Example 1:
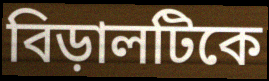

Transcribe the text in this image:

বিড়ালটিকে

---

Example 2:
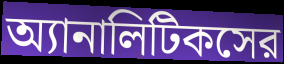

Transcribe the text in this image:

অ্যানালিটিকসের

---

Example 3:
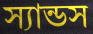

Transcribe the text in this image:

স্যান্ডস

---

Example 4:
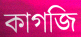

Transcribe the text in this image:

কাগজি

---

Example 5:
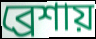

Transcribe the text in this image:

ব্রেশায়